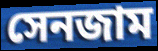
সেনজাম